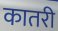
कातरी